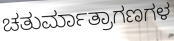
ಚತುರ್ಮಾತ್ರಾಗಣಗಳ